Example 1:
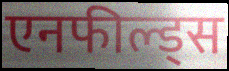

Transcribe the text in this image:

एनफील्ड्स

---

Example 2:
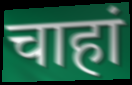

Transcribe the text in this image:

चाहां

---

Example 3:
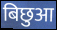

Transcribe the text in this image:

बिछुआ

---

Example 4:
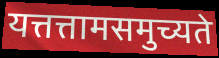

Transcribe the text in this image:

यत्तत्तामसमुच्यते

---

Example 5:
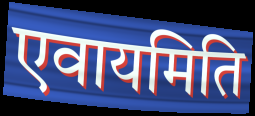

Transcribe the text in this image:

एवायमिति